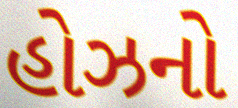
હોઝનો